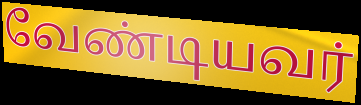
வேண்டியவர்